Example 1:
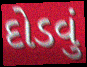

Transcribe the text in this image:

દોડવું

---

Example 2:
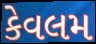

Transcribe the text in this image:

કેવલમ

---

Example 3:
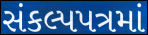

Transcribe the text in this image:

સંકલ્પપત્રમાં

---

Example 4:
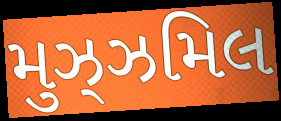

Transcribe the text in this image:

મુઝ્ઝમિલ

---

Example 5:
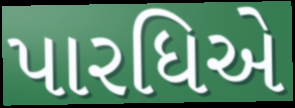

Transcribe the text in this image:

પારધિએ